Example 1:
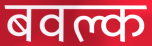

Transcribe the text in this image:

बवल्क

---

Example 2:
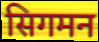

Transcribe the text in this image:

सिगमन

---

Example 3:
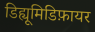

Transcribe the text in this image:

डिह्यूमिडिफ़ायर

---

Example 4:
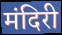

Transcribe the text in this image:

मंदिरी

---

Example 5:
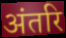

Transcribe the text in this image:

अंतरि